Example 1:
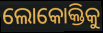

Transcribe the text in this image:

ଲୋକୋକ୍ତିକୁ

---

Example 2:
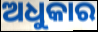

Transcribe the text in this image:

ଅଧୁକାର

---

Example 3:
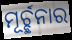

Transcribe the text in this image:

ମୂର୍ଚ୍ଛନାର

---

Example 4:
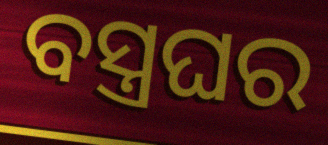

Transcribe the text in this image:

ବସ୍ତ୍ରଘର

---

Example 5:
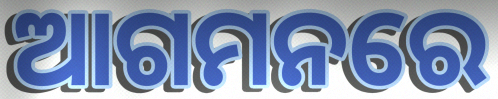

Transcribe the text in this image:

ଆଗମନରେ